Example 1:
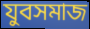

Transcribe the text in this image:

যুবসমাজ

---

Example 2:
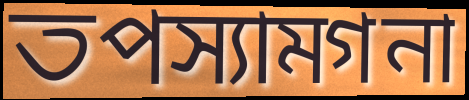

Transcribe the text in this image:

তপস্যামগনা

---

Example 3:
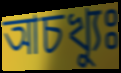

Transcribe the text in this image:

আচখ্যুঃ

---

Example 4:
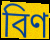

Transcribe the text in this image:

বিণ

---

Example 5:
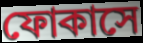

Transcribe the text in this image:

ফোকাসে